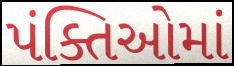
પંક્તિઓમાં